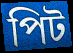
পিট